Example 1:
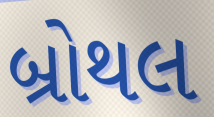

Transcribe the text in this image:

બ્રોથલ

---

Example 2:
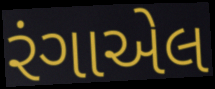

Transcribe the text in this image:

રંગાએલ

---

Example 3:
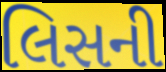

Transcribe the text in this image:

લિસની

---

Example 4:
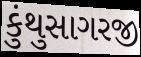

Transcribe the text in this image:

કુંથુસાગરજી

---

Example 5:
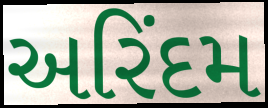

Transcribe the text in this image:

અરિંદમ